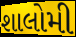
શાલોમી